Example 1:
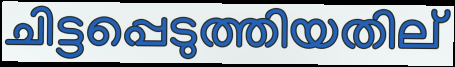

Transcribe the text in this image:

ചിട്ടപ്പെടുത്തിയതില്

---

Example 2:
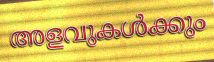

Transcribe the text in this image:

അളവുകൾക്കും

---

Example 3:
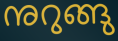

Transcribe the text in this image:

നുറുങ്ങു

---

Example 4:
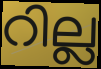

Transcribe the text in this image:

റില്ല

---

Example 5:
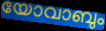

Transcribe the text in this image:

യോവാബും